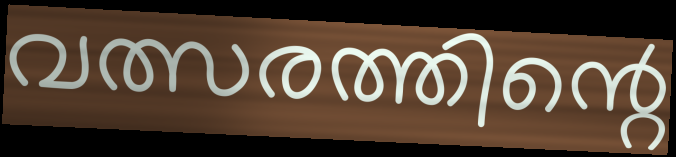
വത്സരത്തിന്റെ